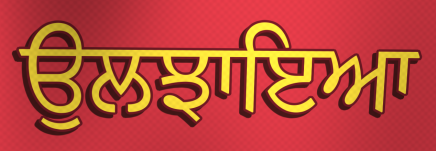
ਉਲਝਾਇਆ